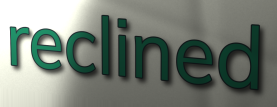
reclined